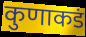
कुणाकडं